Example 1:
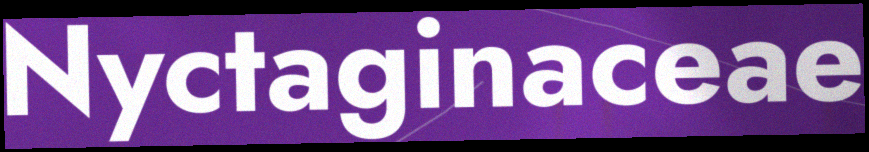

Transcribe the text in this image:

Nyctaginaceae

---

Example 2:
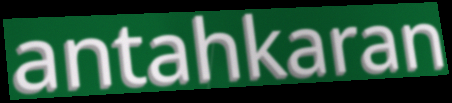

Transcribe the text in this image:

antahkaran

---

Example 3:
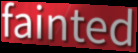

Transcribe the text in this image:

fainted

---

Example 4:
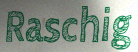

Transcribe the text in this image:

Raschig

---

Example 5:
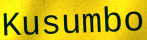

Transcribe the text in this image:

Kusumbo